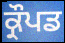
ਕ੍ਰੌਪਡ